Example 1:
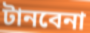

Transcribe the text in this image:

টানবেনা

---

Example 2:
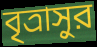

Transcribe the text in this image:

বৃত্রাসুর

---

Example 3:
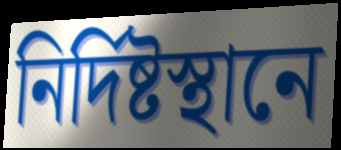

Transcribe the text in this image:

নির্দিষ্টস্থানে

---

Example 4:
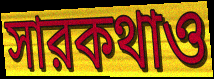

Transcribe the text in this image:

সারকথাও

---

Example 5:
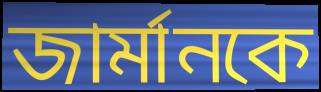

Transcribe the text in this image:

জার্মানকে